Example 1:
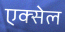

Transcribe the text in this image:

एक्‍सेल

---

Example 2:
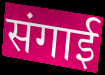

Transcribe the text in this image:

संगाई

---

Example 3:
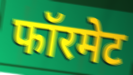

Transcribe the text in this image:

फॉरमेट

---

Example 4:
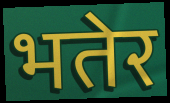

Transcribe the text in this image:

भतेर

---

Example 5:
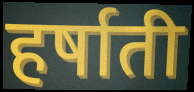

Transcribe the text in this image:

हर्षाती